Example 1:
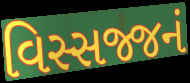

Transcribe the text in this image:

વિસ્સજ્જનં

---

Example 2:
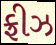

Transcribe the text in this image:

ફ્રીઝ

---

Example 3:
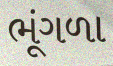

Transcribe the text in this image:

ભૂંગળા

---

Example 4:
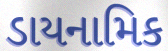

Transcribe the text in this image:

ડાયનામિક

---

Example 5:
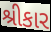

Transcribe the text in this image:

શ્રીકાર